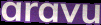
aravu